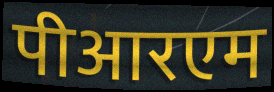
पीआरएम